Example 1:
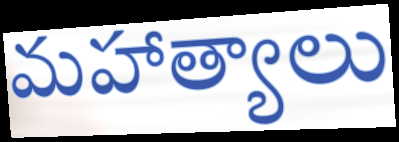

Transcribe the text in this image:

మహాత్యాలు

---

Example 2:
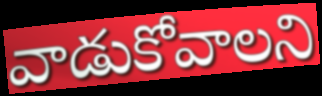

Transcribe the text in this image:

వాడుకోవాలని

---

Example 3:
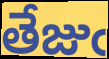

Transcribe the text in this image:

తేజుఁ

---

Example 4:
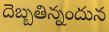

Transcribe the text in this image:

దెబ్బతిన్నందున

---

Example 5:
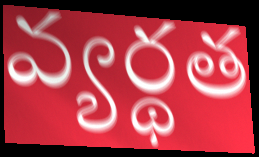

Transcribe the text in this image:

వ్యర్థత